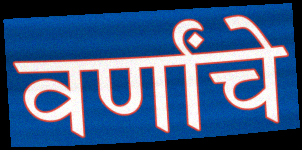
वर्णांचे